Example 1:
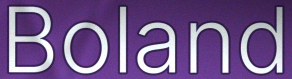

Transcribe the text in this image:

Boland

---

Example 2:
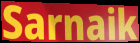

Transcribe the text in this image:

Sarnaik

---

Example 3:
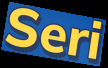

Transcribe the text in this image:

Seri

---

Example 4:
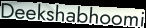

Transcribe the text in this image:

Deekshabhoomi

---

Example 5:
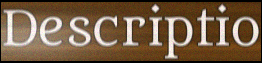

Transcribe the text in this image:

Descriptio